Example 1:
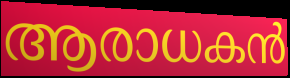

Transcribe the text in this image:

ആരാധകൻ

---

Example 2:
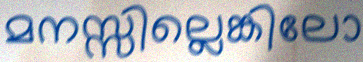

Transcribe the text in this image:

മനസ്സില്ലെങ്കിലോ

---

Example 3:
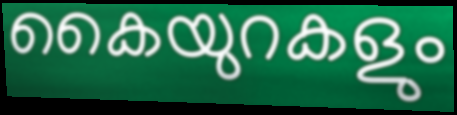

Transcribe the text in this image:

കൈയുറകളും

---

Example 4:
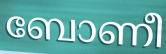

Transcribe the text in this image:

ബോണീ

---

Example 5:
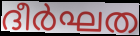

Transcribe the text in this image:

ദീർഘത